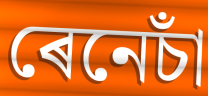
ৰেনেচাঁ